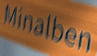
Minalben